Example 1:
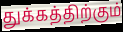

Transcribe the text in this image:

துக்கத்திற்கும்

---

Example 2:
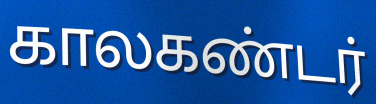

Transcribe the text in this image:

காலகண்டர்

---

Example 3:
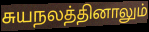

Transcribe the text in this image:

சுயநலத்தினாலும்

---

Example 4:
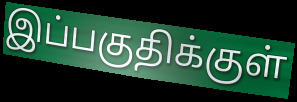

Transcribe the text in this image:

இப்பகுதிக்குள்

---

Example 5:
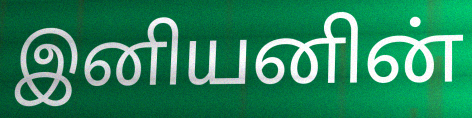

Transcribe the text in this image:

இனியனின்